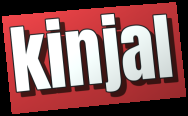
kinjal